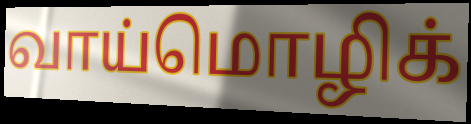
வாய்மொழிக்